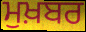
ਮੁਖ਼ਬਰ